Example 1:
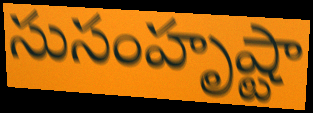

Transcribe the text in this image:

సుసంహృష్టా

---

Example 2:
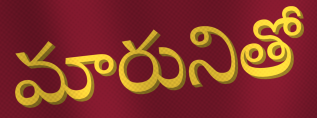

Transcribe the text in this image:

మారునితో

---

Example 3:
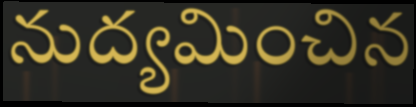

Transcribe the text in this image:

నుద్యమించిన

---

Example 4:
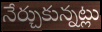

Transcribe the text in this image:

నేర్చుకున్నట్లు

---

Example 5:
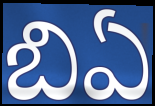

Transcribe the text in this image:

బిఏ